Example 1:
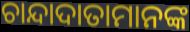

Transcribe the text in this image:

ଚାନ୍ଦାଦାତାମାନଙ୍କ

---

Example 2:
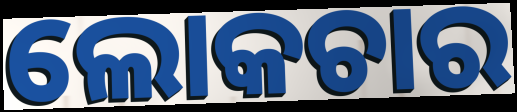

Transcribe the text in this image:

ଲୋକଚାର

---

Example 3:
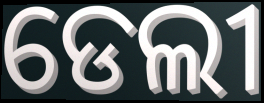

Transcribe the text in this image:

ଡେଲୀ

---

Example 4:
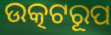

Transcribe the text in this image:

ଉତ୍କଟରୂପ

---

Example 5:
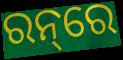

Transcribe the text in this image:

ରନ୍‌ରେ